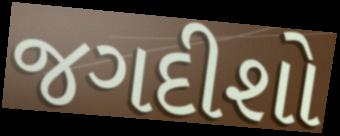
જગદીશો